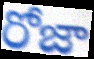
రోజా